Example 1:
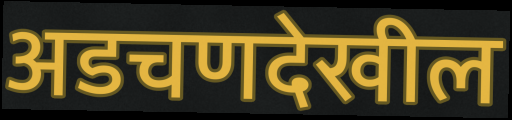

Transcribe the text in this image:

अडचणदेखील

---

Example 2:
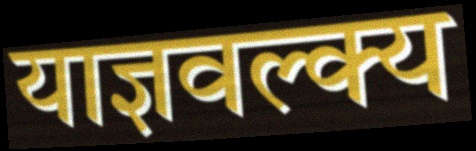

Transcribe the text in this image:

याज्ञवल्क्य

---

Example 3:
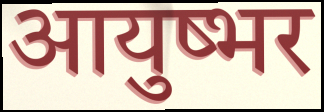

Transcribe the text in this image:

आयुष्भर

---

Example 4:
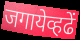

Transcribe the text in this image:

जगायेव्हढें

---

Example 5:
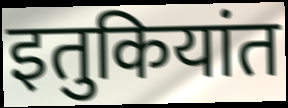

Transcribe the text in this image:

इतुकियांत